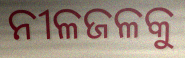
ନୀଳଜଳକୁ